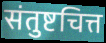
संतुष्टचित्त